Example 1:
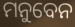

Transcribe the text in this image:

ମନୁବେନ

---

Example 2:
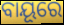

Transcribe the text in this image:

ବାୟୂରେ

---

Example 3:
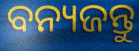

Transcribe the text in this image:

ବନ୍ୟଜନ୍ତୁ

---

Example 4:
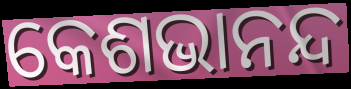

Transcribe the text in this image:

କେଶଭାନନ୍ଦ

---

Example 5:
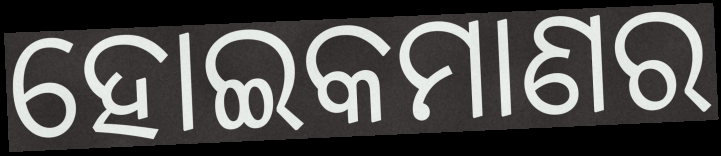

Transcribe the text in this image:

ହୋଇକମାଣର